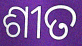
ଶୀତ